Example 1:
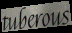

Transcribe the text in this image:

tuberous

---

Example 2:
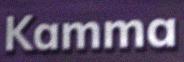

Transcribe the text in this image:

Kamma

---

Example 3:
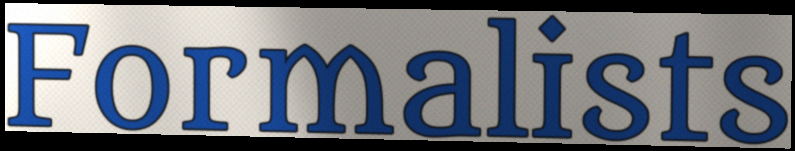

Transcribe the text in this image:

Formalists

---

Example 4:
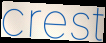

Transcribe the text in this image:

crest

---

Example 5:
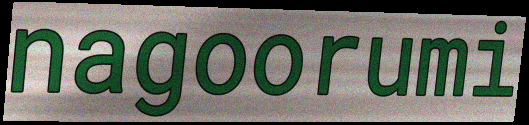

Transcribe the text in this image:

nagoorumi